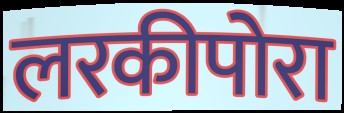
लरकीपोरा